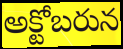
అక్టోబరున